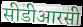
सीडीआरसी